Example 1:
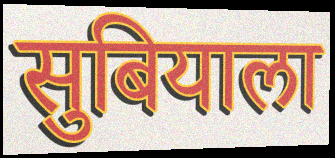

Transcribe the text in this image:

सुबियाला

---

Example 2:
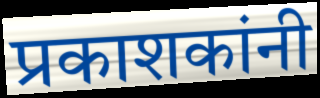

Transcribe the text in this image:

प्रकाशकांनी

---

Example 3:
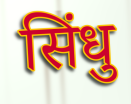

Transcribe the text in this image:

सिंधु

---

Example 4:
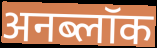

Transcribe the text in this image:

अनब्लॉक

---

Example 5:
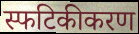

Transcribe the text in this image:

स्फटिकीकरण